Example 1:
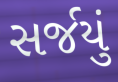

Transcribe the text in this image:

સર્જયું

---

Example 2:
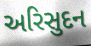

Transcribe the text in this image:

અરિસુદન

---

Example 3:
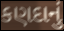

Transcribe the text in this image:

કણદાનું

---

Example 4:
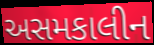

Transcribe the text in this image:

અસમકાલીન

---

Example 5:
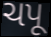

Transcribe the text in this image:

ચપૂ